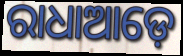
ରାଧାଆଡ଼େ